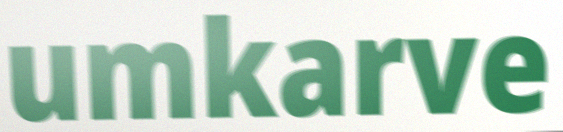
umkarve